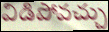
విడిపోవచ్చు